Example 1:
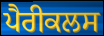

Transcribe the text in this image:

ਪੈਰੀਕਲਸ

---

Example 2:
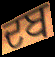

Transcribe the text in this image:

ਦਬ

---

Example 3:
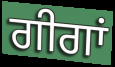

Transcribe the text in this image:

ਗੀਗਾਂ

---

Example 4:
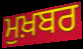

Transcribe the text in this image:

ਮੁਖ਼ਬਰ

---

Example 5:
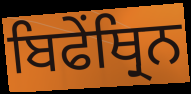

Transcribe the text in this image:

ਬਿਫੇਂਥ੍ਰਿਨ